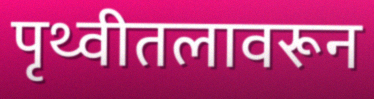
पृथ्वीतलावरून